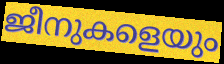
ജീനുകളെയും